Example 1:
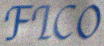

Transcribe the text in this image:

FICO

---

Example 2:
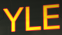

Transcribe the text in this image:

YLE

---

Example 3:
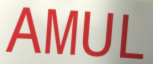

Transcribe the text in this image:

AMUL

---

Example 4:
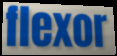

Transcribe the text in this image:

flexor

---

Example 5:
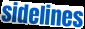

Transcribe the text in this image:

sidelines